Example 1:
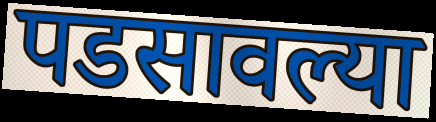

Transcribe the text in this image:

पडसावल्या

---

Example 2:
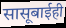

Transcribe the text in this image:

सासूबाईही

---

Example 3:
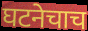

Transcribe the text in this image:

घटनेचाच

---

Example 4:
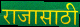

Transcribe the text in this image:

राजासाठी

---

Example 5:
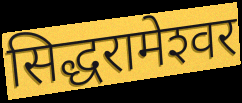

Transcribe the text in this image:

सिद्धरामेश्‍वर